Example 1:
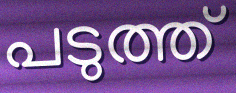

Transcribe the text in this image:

പടുത്ത്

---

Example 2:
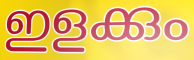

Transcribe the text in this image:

ഇളക്കും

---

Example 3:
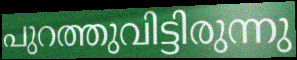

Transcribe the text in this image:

പുറത്തുവിട്ടിരുന്നു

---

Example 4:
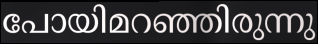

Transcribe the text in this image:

പോയിമറഞ്ഞിരുന്നു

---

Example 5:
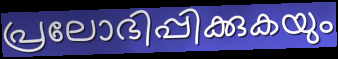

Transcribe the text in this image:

പ്രലോഭിപ്പിക്കുകയും